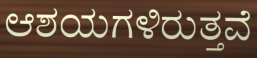
ಆಶಯಗಳಿರುತ್ತವೆ